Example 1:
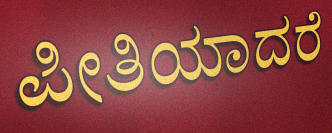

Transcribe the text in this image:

ಪೀತಿಯಾದರೆ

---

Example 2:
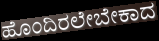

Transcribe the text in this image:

ಹೊಂದಿರಲೇಬೇಕಾದ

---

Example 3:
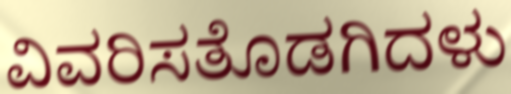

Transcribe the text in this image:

ವಿವರಿಸತೊಡಗಿದಳು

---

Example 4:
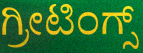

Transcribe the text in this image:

ಗ್ರೀಟಿಂಗ್ಸ್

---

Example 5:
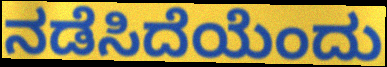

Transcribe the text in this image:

ನಡೆಸಿದೆಯೆಂದು